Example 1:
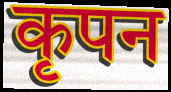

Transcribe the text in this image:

कृपन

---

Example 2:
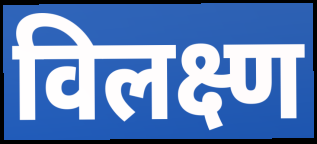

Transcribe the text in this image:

विलक्ष्ण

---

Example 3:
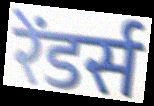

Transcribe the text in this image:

रेंडर्स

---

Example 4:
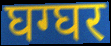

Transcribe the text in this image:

घग्घर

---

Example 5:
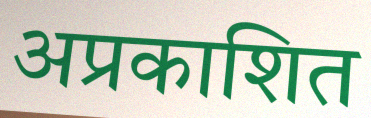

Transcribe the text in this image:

अप्रकाशित